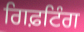
ਗਿਫ਼ਟਿੰਗ